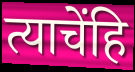
त्याचेंहि